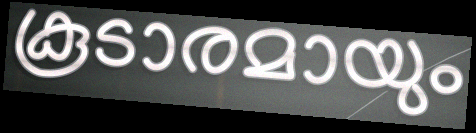
കൂടാരമായും